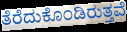
ತೆರೆದುಕೊಂಡಿರುತ್ತವೆ